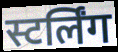
स्टर्लिंग